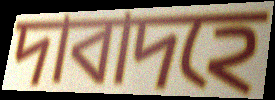
দাবাদহে